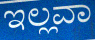
ಇಲ್ಲವಾ